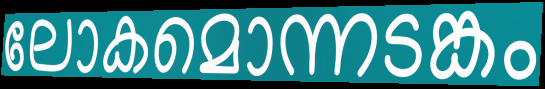
ലോകമൊന്നടങ്കം